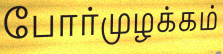
போர்முழக்கம்